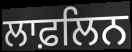
ਲਾਫ਼ਲਿਨ